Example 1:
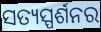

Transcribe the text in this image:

ସତ୍ୟସ୍ପର୍ଶନର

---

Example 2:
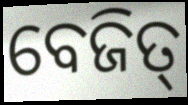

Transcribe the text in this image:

ବେଜିତ୍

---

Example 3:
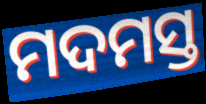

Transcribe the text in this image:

ମଦମସ୍ତ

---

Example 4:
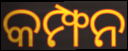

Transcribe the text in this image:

କମ୍ଫନ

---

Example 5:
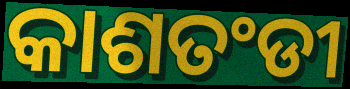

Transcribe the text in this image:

କାଶତଂଡୀ